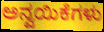
ಅನ್ವಯಿಕೆಗಳು